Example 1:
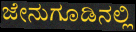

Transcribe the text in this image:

ಜೇನುಗೂಡಿನಲ್ಲಿ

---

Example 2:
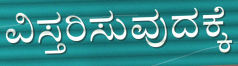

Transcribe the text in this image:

ವಿಸ್ತರಿಸುವುದಕ್ಕೆ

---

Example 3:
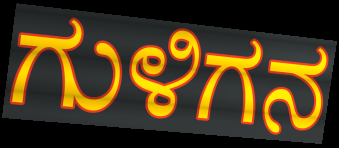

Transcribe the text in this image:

ಗುಳಿಗನ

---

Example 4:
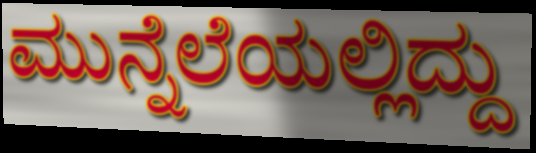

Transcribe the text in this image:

ಮುನ್ನೆಲೆಯಲ್ಲಿದ್ದು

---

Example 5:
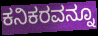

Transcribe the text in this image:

ಕನಿಕರವನ್ನೂ